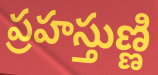
ప్రహస్తుణ్ణి